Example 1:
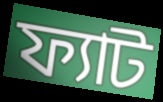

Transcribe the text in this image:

ফ্যাট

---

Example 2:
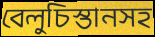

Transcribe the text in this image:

বেলুচিস্তানসহ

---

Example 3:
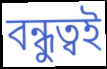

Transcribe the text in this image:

বন্ধুত্বই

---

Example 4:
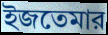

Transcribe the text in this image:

ইজতেমার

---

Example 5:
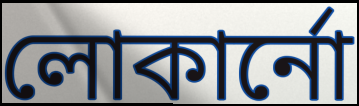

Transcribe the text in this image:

লোকার্নো